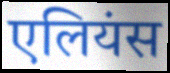
एलियंस